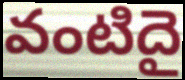
వంటిదై